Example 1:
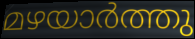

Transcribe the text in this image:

മഴയാർത്തു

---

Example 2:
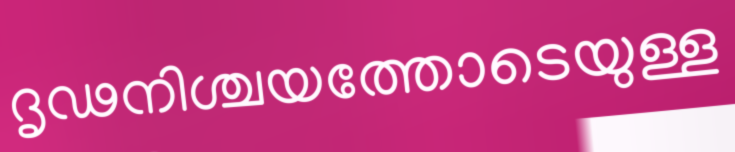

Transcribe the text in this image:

ദൃഢനിശ്ചയത്തോടെയുള്ള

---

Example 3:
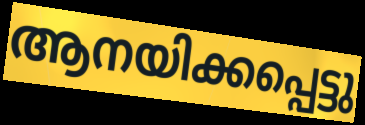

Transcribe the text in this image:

ആനയിക്കപ്പെട്ടു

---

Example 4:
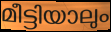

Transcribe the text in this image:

മീട്ടിയാലും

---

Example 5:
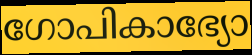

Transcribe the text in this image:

ഗോപികാഭ്യോ